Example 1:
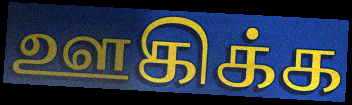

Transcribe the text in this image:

ஊகிக்க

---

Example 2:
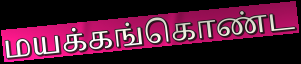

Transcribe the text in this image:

மயக்கங்கொண்ட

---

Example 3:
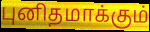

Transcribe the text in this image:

புனிதமாக்கும்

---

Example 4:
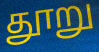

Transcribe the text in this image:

தூறு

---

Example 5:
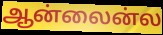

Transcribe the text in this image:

ஆன்லைன்ல